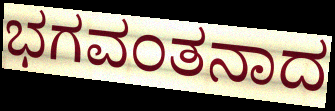
ಭಗವಂತನಾದ